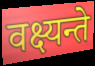
वक्ष्यन्ते